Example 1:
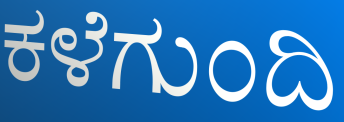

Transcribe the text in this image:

ಕಳೆಗುಂದಿ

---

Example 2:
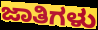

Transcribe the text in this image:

ಜಾತಿಗಳು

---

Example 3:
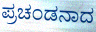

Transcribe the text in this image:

ಪ್ರಚಂಡನಾದ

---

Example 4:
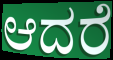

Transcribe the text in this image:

ಆದರೆ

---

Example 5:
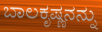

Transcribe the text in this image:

ಬಾಲಕೃಷ್ಣನನ್ನು